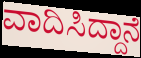
ವಾದಿಸಿದ್ದಾನೆ